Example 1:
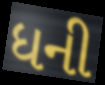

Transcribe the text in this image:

ધની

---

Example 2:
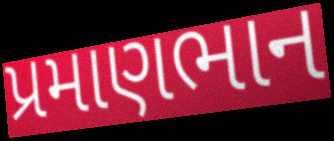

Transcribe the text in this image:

પ્રમાણભાન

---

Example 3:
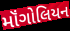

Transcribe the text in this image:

મૉંગોલિયન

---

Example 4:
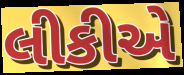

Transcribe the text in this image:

લીકીએ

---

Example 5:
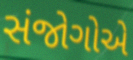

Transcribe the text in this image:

સંજોગોએ